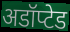
अडॉप्टेड